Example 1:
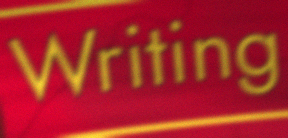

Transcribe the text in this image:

Writing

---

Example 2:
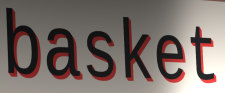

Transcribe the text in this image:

basket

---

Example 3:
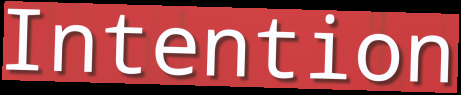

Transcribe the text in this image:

Intention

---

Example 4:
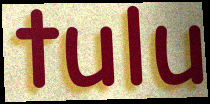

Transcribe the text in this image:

tulu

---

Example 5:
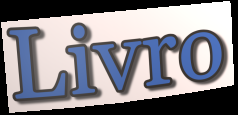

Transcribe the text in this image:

Livro